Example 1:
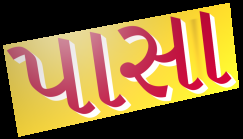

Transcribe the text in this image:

પાસા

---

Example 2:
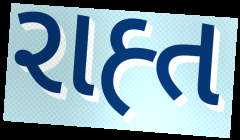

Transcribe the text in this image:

રાહ્ત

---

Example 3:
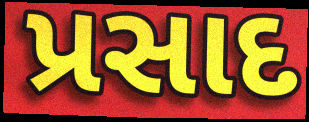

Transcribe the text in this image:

પ્રસાદ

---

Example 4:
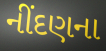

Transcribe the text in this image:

નીંદણના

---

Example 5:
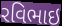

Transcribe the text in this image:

રવિભાઇ